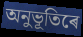
অনুভূতিৰে